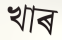
খাৰ